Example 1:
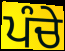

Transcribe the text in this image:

ਪੰਚੇ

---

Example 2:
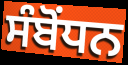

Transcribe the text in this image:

ਸੰਬੋੰਧਨ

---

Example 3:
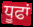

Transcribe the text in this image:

ਧੂਫਾਂ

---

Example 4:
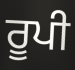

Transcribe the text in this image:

ਰੂਪੀ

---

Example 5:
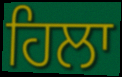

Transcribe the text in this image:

ਹਿਲਾ